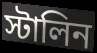
স্টালিন